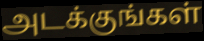
அடக்குங்கள்